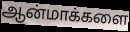
ஆன்மாக்களை